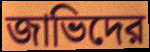
জাভিদের